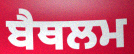
ਬੈਥਲਮ